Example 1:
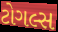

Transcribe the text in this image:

ટોગલ્સ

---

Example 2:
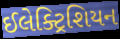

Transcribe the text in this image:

ઈલેક્ટ્રિશિયન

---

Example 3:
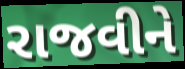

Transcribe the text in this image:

રાજવીને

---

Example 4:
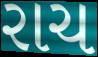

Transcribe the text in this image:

રાચ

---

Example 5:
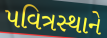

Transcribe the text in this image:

પવિત્રસ્થાને